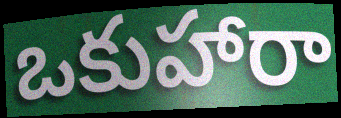
ఒకుహారా